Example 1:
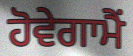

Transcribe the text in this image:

ਹੋਵੇਗਾਮੈਂ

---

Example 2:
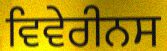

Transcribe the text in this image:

ਵਿਵੇਰੀਨਸ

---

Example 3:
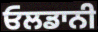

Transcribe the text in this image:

ਓਲਡਾਨੀ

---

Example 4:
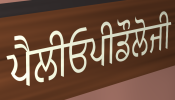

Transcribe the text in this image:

ਪੈਲੀਓਪੀਡੌਲੋਜੀ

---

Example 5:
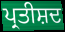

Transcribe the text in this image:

ਪ੍ਰਤੀਸ਼ਦ